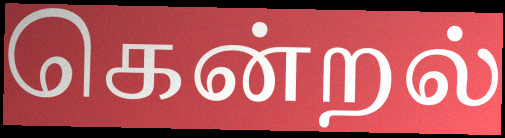
கென்றல்